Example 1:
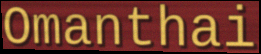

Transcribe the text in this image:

Omanthai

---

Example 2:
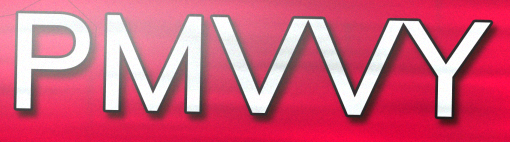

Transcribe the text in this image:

PMVVY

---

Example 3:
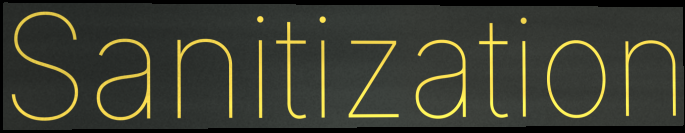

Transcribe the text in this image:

Sanitization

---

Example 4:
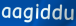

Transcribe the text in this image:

aagiddu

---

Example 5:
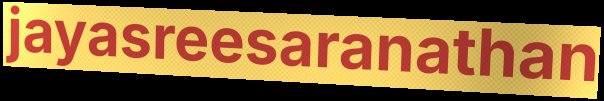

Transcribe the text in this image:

jayasreesaranathan